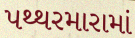
પથ્થરમારામાં